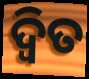
ଦ୍ବିତ